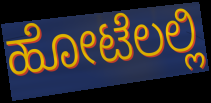
ಹೋಟೆಲಲ್ಲಿ